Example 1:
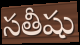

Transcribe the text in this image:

సతీషు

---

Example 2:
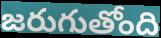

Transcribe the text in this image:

జరుగుతోంది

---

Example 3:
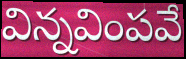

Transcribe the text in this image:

విన్నవింపవే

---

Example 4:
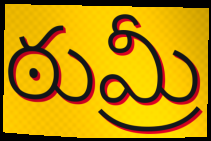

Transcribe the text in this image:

ఠుమ్రీ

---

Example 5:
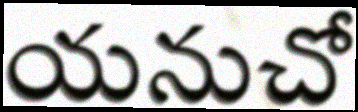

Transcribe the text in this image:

యనుచో